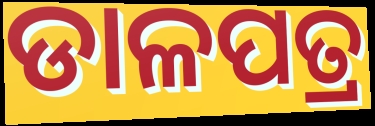
ଡାଳପତ୍ର